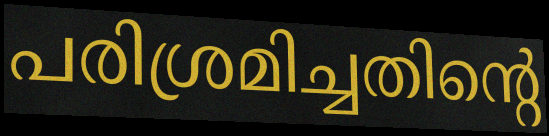
പരിശ്രമിച്ചതിന്റെ